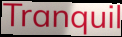
Tranquil